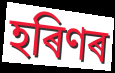
হৰিণৰ